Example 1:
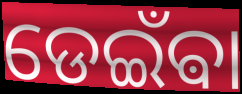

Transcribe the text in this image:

ଡେଇଁଵା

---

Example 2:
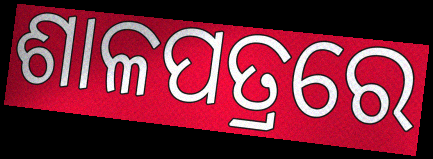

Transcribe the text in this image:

ଶାଳପତ୍ରରେ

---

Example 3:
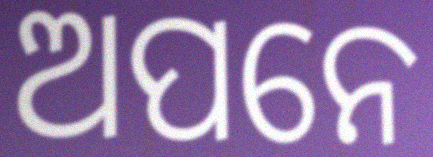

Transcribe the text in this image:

ଅପନେ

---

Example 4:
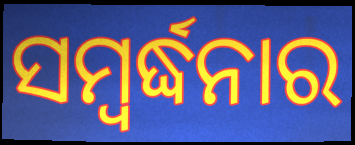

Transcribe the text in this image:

ସମ୍ବର୍ଦ୍ଧନାର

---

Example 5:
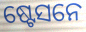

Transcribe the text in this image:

ଷ୍ଟେସନେ